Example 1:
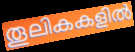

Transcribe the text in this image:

തൂലികകളിൽ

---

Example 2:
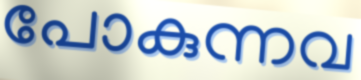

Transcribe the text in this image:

പോകുന്നവ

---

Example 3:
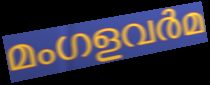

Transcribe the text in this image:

മംഗളവർമ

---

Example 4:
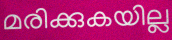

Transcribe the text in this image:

മരിക്കുകയില്ല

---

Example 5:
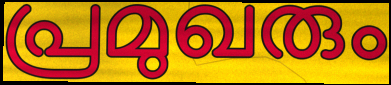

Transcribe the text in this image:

പ്രമുഖരും